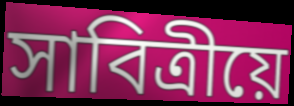
সাবিত্ৰীয়ে